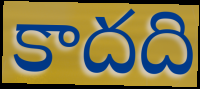
కాదది